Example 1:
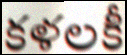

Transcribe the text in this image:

కళలకీ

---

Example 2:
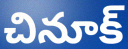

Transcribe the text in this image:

చినూక్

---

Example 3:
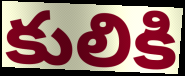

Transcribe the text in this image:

కులికి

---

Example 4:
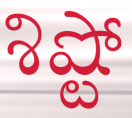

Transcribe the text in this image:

శిష్టో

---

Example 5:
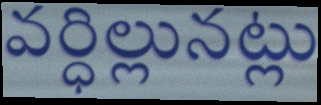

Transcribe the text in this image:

వర్ధిల్లునట్లు